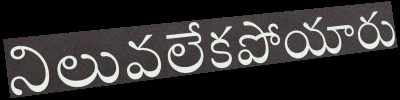
నిలువలేకపోయారు